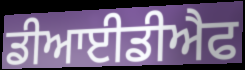
ਡੀਆਈਡੀਐਫ